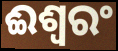
ଈଶ୍ୱରଂ